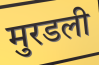
मुरडली